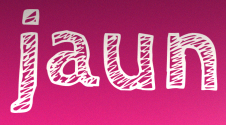
jaun